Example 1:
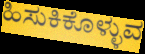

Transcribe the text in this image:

ಹಿಸುಕಿಕೊಳ್ಳುವ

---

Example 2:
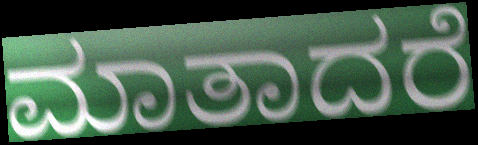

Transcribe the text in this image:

ಮಾತಾದರೆ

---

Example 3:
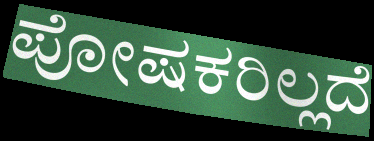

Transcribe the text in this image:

ಪೋಷಕರಿಲ್ಲದೆ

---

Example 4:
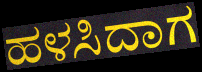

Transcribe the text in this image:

ಹಳಸಿದಾಗ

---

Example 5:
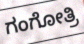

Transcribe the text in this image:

ಗಂಗೋತ್ರಿ